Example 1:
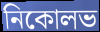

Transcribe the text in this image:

নিকোলভ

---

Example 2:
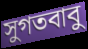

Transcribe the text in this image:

সুগতবাবু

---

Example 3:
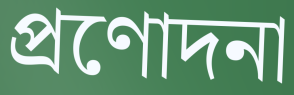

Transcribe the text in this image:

প্রণোদনা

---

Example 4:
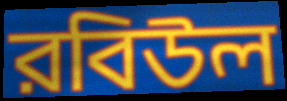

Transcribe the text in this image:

রবিউল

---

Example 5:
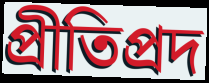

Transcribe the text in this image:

প্রীতিপ্রদ